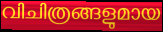
വിചിത്രങ്ങളുമായ